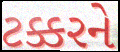
ટક્કરને